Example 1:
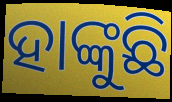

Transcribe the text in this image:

ହାଙ୍କୁଛି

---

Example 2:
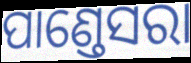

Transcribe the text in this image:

ପାଣ୍ଡେସରା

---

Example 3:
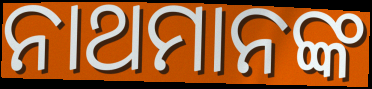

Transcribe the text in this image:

ନାଥମାନଙ୍କ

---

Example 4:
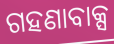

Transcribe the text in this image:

ଗହଣାବାକ୍ସ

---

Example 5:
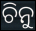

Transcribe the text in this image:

ଚିନୁ